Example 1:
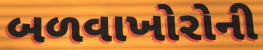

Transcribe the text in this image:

બળવાખોરોની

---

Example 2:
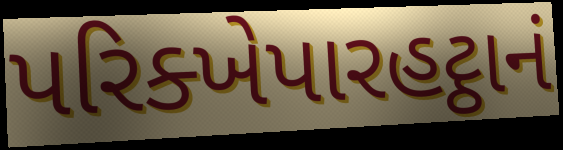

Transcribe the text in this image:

પરિક્ખેપારહટ્ઠાનં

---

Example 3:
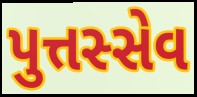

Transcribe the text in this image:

પુત્તસ્સેવ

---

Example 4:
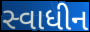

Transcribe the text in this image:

સ્વાધીન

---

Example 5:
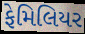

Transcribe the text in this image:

ફેમિલિયર